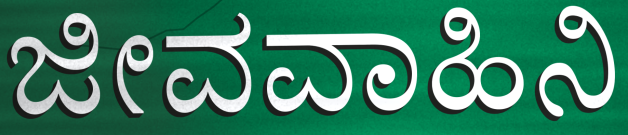
ಜೀವವಾಹಿನಿ